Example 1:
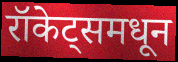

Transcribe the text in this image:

रॉकेट्समधून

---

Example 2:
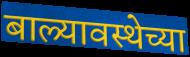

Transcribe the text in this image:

बाल्यावस्थेच्या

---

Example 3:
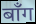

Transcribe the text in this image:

बाँग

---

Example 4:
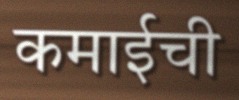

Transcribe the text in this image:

कमाईची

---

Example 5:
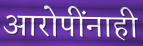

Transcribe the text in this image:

आरोपींनाही